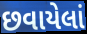
છવાયેલાં